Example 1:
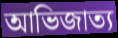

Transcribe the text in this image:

আভিজাত্য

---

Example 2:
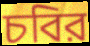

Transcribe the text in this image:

চবির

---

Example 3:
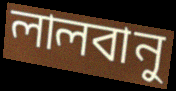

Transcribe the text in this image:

লালবানু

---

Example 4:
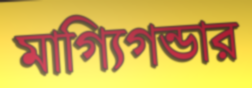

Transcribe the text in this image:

মাগ্যিগন্ডার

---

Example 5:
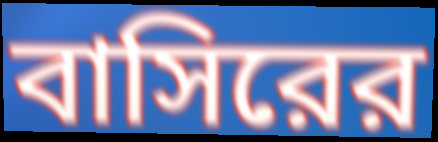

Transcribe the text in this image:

বাসিরের